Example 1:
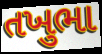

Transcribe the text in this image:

તખુભા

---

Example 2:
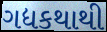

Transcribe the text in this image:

ગદ્યકથાથી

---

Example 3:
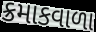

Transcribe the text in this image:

ક્રમાકવાળા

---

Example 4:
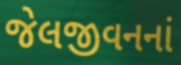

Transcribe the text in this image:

જેલજીવનનાં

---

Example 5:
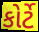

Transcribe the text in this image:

કોર્ટે